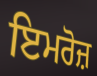
ਇਮਰੋਜ਼